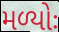
મળ્યોઃ